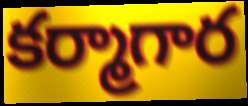
కర్మాగార